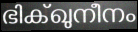
ഭിക്ഖുനീനം